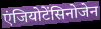
एंजियोटेंसिनोजेन